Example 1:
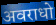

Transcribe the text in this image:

अवराधो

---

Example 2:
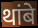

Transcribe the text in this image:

थांबे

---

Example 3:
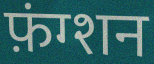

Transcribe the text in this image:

फ़ंग्शन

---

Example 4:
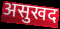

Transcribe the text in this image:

असुखद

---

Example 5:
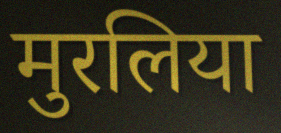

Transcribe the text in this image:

मुरलिया